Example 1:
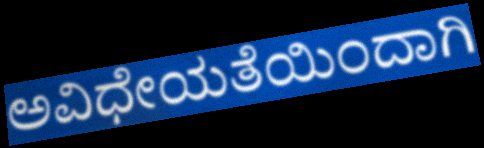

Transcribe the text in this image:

ಅವಿಧೇಯತೆಯಿಂದಾಗಿ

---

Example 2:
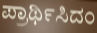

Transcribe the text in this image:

ಪ್ರಾರ್ಥಿಸಿದಂ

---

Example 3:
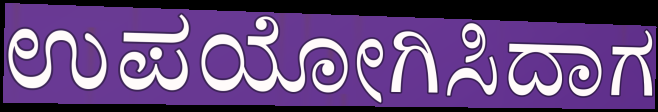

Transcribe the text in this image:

ಉಪಯೋಗಿಸಿದಾಗ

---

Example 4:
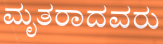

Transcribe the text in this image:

ಮೃತರಾದವರು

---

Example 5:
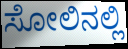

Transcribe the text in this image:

ಸೋಲಿನಲ್ಲಿ